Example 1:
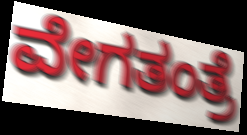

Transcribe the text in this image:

ವೇಗತಂತ್ರೆ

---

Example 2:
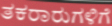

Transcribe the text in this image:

ತಕರಾರುಗಳಿಗೆ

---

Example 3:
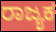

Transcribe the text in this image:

ರಾಜ್ಯಕ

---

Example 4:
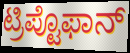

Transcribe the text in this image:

ಟ್ರಿಪ್ಟೊಫಾನ್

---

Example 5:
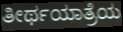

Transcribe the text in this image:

ತೀರ್ಥಯಾತ್ರೆಯ